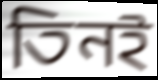
তিনই